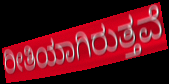
ರೀತಿಯಾಗಿರುತ್ತವೆ